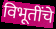
विभूतींचे